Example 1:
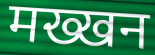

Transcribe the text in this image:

मख्खन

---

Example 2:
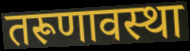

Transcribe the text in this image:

तरूणावस्था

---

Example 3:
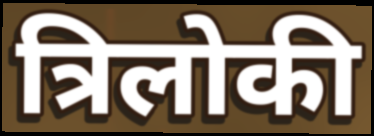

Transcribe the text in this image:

त्रिलोकी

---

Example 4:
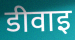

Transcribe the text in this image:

डीवाइ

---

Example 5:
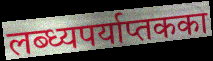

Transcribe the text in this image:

लब्ध्यपर्याप्तकका